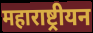
महाराष्ट्रीयन